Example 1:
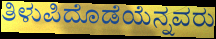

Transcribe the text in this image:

ತಿಳುಪಿದೊಡೆಯೆನ್ನವರು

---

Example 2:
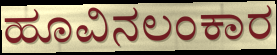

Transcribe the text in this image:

ಹೂವಿನಲಂಕಾರ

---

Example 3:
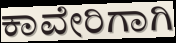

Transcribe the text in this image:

ಕಾವೇರಿಗಾಗಿ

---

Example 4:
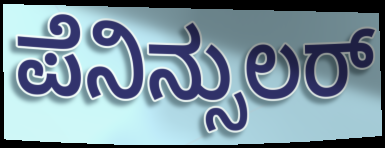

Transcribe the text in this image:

ಪೆನಿನ್ಸುಲರ್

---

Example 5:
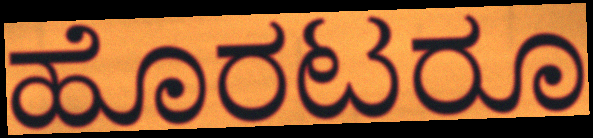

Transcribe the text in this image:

ಹೊರಟರೂ